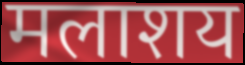
मलाशय